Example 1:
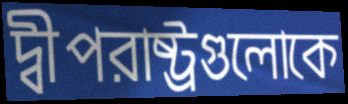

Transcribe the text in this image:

দ্বীপরাষ্ট্রগুলোকে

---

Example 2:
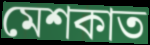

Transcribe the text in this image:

মেশকাত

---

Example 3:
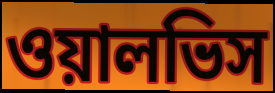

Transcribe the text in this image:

ওয়ালভিস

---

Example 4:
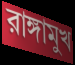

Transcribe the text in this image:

রাঙ্গামুখ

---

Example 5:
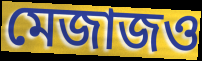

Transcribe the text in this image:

মেজাজও